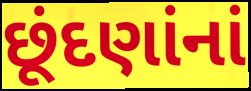
છૂંદણાંનાં